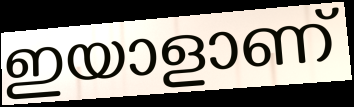
ഇയാളാണ്